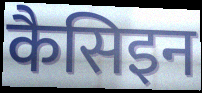
कैसिइन